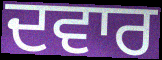
ਦਵਾਰ